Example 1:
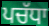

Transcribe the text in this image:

ਪਚੱਧਾ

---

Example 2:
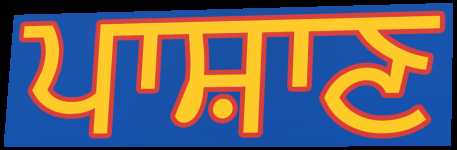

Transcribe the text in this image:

ਪਾਸ਼ਾਣ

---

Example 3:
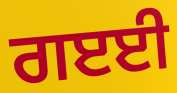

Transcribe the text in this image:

ਗੲਈ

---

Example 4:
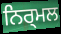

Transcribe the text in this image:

ਨਿਰ੍ਮਲ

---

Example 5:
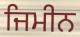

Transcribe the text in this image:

ਜਿਮੀਨ